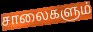
சாலைகளும்